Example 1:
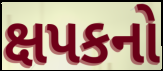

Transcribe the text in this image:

ક્ષપકનો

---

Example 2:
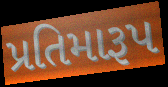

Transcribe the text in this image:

પ્રતિમારૂપ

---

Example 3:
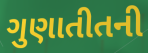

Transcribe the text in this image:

ગુણાતીતની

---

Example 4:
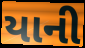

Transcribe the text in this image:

યાની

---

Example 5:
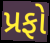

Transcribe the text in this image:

પ્રફો